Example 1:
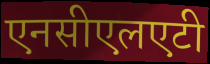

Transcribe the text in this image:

एनसीएलएटी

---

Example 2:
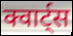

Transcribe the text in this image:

क्वार्ट्स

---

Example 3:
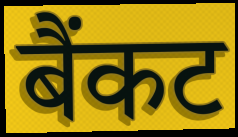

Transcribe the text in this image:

बैंकट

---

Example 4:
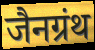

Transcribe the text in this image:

जैनग्रंथ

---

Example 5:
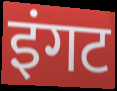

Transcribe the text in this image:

इंगट